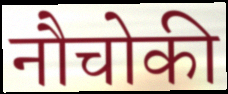
नौचोकी